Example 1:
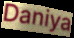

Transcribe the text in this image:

Daniya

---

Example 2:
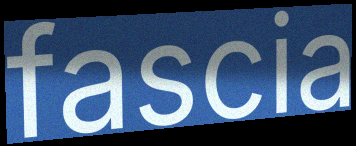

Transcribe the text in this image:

fascia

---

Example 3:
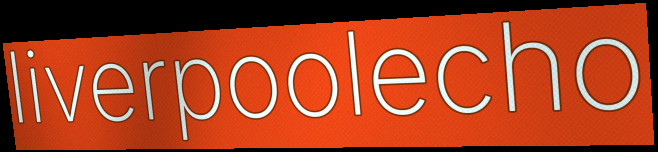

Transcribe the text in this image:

liverpoolecho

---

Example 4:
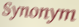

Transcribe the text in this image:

Synonym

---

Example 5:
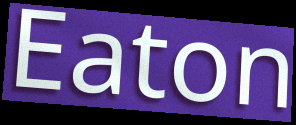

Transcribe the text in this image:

Eaton